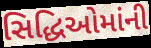
સિદ્ધિઓમાંની